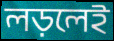
লড়লেই